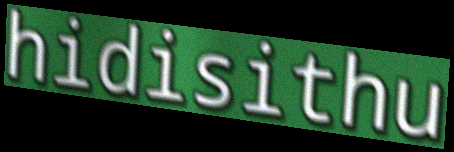
hidisithu